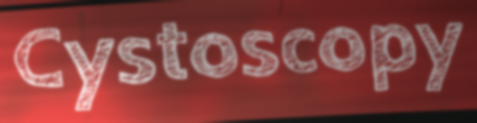
Cystoscopy